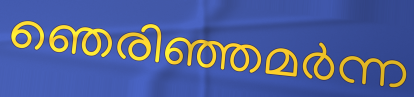
ഞെരിഞ്ഞമർന്ന